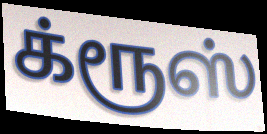
க்ரூஸ்